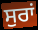
ਸੁਰਾਂ